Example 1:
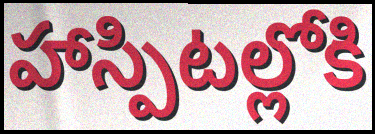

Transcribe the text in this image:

హాస్పిటల్లోకి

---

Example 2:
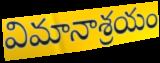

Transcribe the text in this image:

విమానాశ్రయం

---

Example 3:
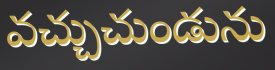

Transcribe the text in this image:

వచ్చుచుండును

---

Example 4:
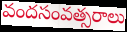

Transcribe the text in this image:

వందసంవత్సరాలు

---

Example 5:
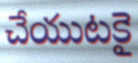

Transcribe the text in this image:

చేయుటకై